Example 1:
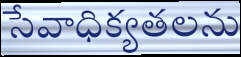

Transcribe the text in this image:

సేవాధిక్యతలను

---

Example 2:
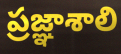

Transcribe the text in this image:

ప్రజ్ఞాశాలి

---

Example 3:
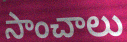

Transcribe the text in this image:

సాంచాలు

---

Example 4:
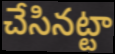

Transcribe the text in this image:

చేసినట్టా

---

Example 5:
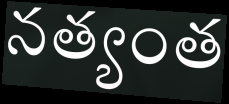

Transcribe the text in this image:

నత్యంత